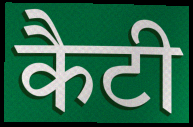
कैटी